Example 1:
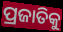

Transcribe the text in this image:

ପ୍ରଜାତିକୁ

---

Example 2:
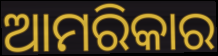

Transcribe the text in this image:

ଆମରିକାର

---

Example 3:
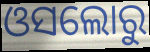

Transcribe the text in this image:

ଓସଲୋରୁ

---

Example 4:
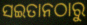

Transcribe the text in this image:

ସଇତାନଠାରୁ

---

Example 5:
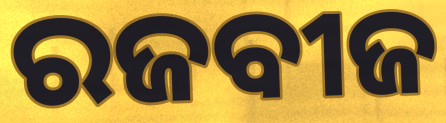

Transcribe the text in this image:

ରଜବୀଜ